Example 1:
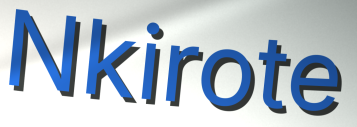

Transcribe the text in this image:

Nkirote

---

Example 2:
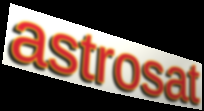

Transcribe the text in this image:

astrosat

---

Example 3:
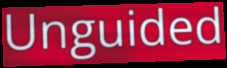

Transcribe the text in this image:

Unguided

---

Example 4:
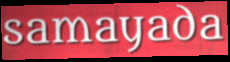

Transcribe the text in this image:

samayada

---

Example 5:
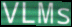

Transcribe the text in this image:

VLMs